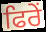
ਫਿਰੇਂ